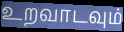
உறவாடவும்